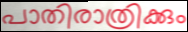
പാതിരാത്രിക്കും